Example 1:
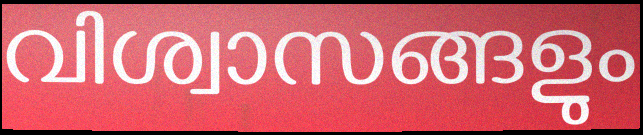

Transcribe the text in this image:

വിശ്വാസങ്ങളും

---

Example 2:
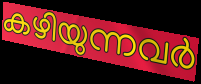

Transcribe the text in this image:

കഴിയുന്നവർ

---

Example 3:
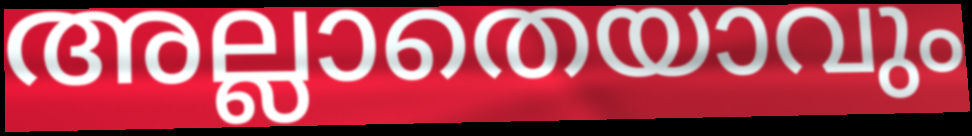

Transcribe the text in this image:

അല്ലാതെയാവും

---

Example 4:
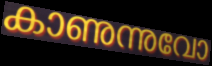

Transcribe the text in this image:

കാണുന്നുവോ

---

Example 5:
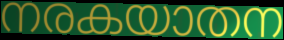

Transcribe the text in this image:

നരകയാതന